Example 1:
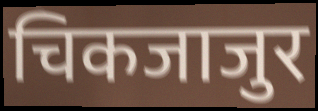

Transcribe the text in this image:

चिकजाजुर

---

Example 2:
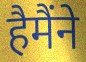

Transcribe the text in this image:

हैमैंने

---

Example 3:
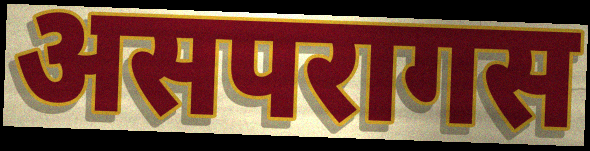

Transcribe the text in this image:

असपरागस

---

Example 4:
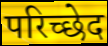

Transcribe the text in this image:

परिच्छेद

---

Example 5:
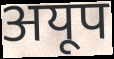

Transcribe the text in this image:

अयूप